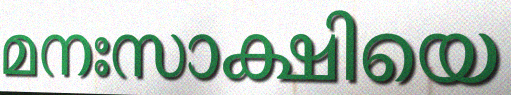
മനഃസാക്ഷിയെ